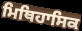
ਮਿਥਿਹਾਸਿਕ